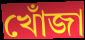
খোঁজা